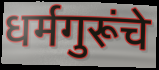
धर्मगुरूंचे